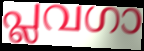
പ്ലവഗാ